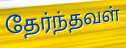
தேர்ந்தவள்